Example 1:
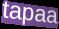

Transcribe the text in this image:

tapaa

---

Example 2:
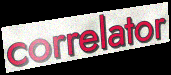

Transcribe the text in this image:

correlator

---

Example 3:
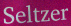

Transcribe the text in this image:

Seltzer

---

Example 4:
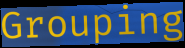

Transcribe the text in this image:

Grouping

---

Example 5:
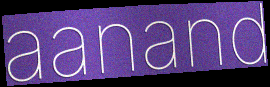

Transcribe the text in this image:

aanand